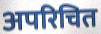
अपरिचित